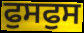
ਫੁਸਫੁਸ